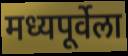
मध्यपूर्वेला